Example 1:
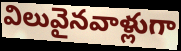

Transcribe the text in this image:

విలువైనవాళ్లుగా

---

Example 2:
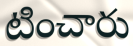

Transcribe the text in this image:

టించారు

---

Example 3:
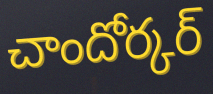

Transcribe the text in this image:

చాందోర్కర్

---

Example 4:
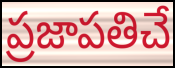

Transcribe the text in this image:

ప్రజాపతిచే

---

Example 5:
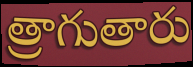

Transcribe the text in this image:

త్రాగుతారు